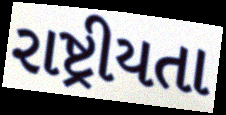
રાષ્ટ્રીયતા